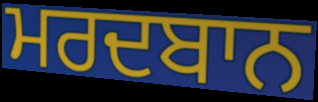
ਮਰਦਬਾਨ